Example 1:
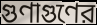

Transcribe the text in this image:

গুণাগুণের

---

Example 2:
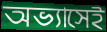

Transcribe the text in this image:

অভ্যাসেই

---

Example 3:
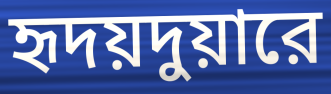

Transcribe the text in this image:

হৃদয়দুয়ারে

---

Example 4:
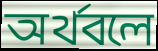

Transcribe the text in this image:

অর্থবলে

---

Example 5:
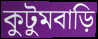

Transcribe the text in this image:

কুটুমবাড়ি